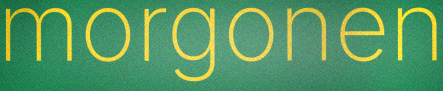
morgonen